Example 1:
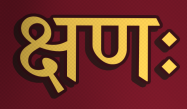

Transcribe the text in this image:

क्षणः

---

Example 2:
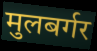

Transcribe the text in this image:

मुलबर्गर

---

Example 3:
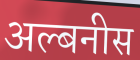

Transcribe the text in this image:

अल्बनीस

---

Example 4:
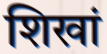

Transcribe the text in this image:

शिखां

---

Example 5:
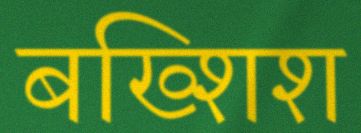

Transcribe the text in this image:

बख्शिश